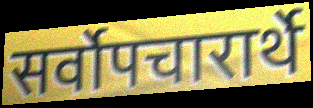
सर्वोपचारार्थे